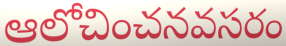
ఆలోచించనవసరం